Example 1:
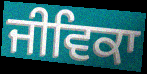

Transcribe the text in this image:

ਜੀਵਿਕਾ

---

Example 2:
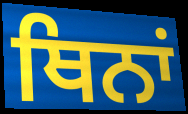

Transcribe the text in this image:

ਥਿਨਾਂ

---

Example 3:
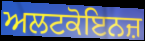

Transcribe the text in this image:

ਅਲਟਕੋਇਨਜ਼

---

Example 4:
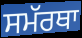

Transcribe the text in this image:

ਸਮੱਰਥਾ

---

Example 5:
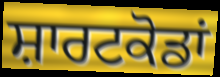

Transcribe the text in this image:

ਸ਼ਾਰਟਕੋਡਾਂ